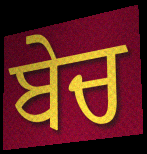
ਬੇਚ